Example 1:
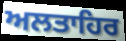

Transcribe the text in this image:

ਅਲਤਾਹਿਰ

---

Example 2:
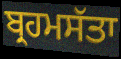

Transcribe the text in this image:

ਬ੍ਰਹਮਸੱਤਾ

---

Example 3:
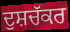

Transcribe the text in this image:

ਦੁਸ਼ਚੱਕਰ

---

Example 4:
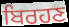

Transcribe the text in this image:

ਬਿਰਹਣ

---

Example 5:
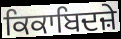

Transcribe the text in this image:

ਕਿਕਾਬਿਦਜ਼ੇ